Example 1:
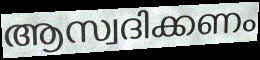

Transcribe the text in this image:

ആസ്വദിക്കണം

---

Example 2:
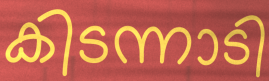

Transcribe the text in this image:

കിടന്നാടി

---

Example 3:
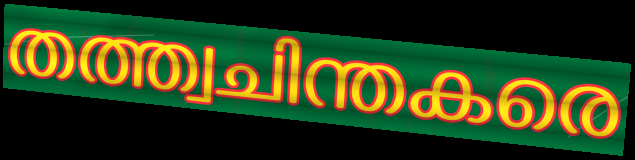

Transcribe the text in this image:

തത്ത്വചിന്തകരെ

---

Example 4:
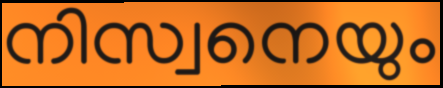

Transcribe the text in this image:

നിസ്വനെയും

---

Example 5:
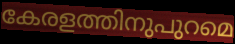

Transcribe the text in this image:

കേരളത്തിനുപുറമെ